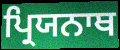
ਪ੍ਰਿਯਨਾਥ